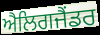
ਐਲਿਗਜੈਂਡਰ